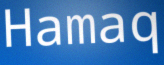
Hamaq